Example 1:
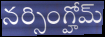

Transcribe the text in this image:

నర్సింగ్హోమ్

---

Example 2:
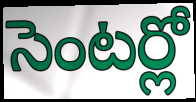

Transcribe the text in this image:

సెంటర్లో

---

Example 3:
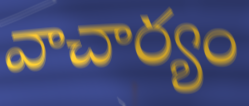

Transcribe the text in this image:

వాచార్యం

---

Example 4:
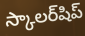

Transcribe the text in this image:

స్కాలర్‌షిప్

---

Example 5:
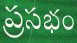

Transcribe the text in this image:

ప్రసభం